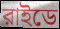
রাইডে